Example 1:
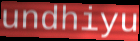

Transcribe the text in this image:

undhiyu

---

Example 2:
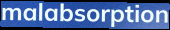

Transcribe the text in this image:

malabsorption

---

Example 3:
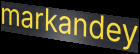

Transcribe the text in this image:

markandey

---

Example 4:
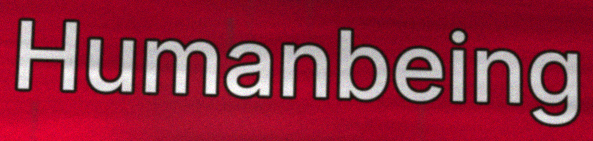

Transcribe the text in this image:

Humanbeing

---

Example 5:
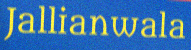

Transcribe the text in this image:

Jallianwala